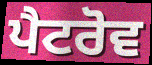
ਪੈਟਰੋਵ